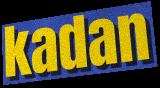
kadan